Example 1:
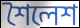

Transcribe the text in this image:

শৈলেশ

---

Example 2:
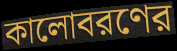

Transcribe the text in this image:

কালোবরণের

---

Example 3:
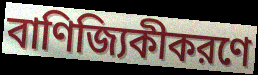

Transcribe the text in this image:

বাণিজ্যিকীকরণে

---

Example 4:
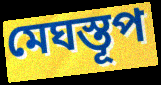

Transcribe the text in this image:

মেঘস্তূপ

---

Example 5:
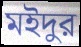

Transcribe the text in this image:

মইদুর